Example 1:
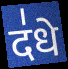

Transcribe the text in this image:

द॑धे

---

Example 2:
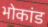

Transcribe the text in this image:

भोकांड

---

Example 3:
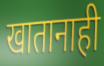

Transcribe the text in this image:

खातानाही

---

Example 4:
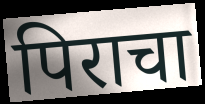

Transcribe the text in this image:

पिराचा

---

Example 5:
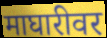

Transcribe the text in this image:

माघारीवर